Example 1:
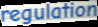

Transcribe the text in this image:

regulation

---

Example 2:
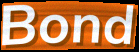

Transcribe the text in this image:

Bond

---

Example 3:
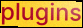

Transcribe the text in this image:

plugins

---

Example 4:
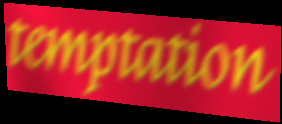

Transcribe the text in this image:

temptation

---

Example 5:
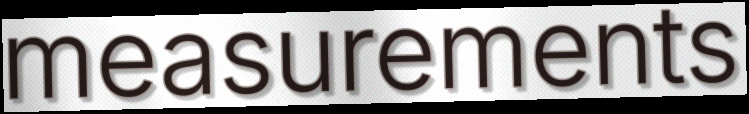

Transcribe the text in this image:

measurements